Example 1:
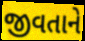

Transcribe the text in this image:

જીવતાને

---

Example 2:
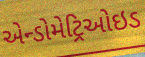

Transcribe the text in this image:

એન્ડોમેટ્રિઓઇડ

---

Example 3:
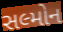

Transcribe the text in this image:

સલ્મોન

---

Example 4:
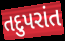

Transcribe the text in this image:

તદુપરાંત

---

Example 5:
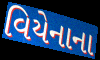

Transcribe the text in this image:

વિયેનાના